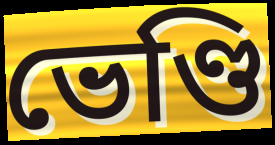
ভেণ্ডি